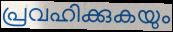
പ്രവഹിക്കുകയും